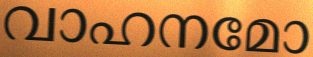
വാഹനമോ